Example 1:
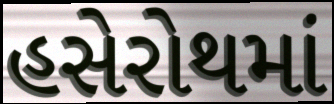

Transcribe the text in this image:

હસેરોથમાં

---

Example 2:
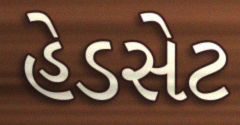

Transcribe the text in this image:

હેડસેટ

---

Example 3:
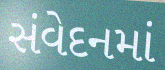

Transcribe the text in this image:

સંવેદનમાં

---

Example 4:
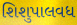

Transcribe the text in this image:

શિશુપાલવધ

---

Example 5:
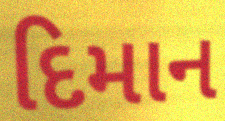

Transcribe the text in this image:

દિમાન